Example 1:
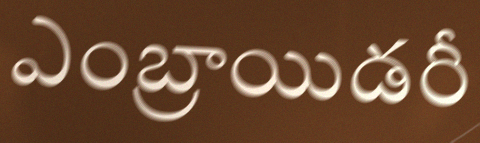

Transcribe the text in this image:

ఎంబ్రాయిడరీ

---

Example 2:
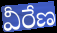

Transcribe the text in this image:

వీరేణ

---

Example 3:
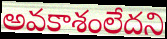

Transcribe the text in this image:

అవకాశంలేదని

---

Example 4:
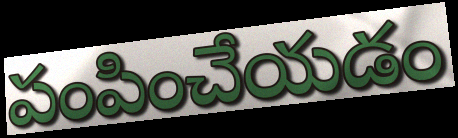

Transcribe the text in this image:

పంపించేయడం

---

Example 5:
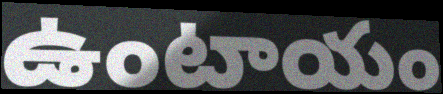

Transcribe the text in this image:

ఉంటాయం